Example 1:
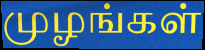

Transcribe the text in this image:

முழங்கள்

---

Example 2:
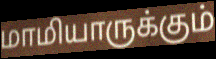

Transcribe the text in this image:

மாமியாருக்கும்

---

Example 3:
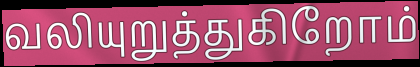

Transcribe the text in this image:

வலியுறுத்துகிறோம்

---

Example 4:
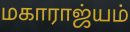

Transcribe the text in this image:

மகாராஜ்யம்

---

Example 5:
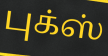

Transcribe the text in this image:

புக்ஸ்